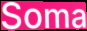
Soma